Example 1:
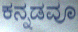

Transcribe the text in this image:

ಕನ್ನಡವೂ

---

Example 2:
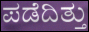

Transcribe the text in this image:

ಪಡೆದಿತ್ತು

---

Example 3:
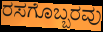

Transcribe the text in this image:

ರಸಗೊಬ್ಬರವು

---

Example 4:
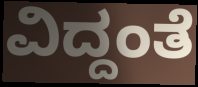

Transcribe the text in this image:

ವಿದ್ದಂತೆ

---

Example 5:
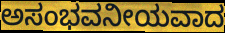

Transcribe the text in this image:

ಅಸಂಭವನೀಯವಾದ